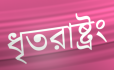
ধৃতরাষ্ট্রং